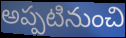
అప్పటినుంచి